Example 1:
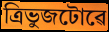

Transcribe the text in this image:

ত্ৰিভুজটোৱে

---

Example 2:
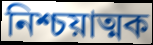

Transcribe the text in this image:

নিশ্চয়াত্মক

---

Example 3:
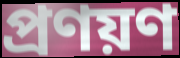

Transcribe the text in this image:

প্ৰণয়ণ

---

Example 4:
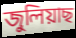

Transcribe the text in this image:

জুলিয়াছ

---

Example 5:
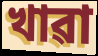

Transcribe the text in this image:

খাৱা